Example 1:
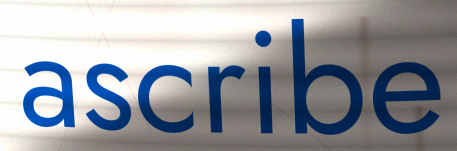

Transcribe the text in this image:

ascribe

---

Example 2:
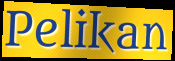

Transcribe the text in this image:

Pelikan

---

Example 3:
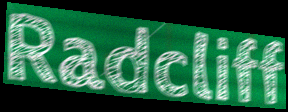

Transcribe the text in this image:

Radcliff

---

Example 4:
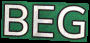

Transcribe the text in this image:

BEG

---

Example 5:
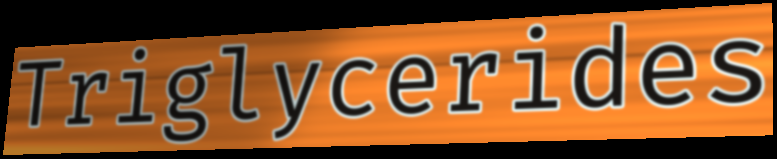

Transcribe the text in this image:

Triglycerides